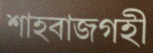
শাহবাজগহী